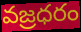
వజ్రధరం